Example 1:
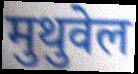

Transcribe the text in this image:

मुथुवेल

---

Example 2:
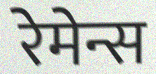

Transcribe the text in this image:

रेमेन्स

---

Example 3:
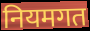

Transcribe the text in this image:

नियमगत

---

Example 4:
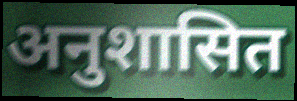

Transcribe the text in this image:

अनुशासित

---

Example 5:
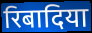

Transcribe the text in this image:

रिबादिया